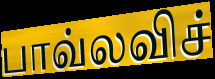
பாவ்லவிச்